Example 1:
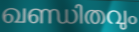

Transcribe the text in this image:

ഖണ്ഡിതവും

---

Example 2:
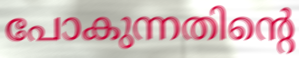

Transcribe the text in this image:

പോകുന്നതിന്റെ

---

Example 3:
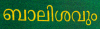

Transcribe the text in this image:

ബാലിശവും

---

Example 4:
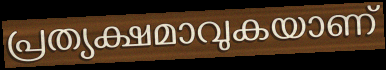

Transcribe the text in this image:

പ്രത്യക്ഷമാവുകയാണ്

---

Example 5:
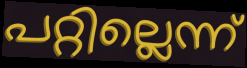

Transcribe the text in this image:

പറ്റില്ലെന്ന്